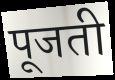
पूजती